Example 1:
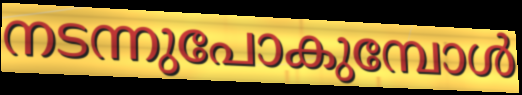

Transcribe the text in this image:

നടന്നുപോകുമ്പോൾ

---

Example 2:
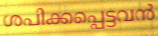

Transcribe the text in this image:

ശപിക്കപ്പെട്ടവൻ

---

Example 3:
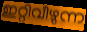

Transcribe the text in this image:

ഇറ്റിവീഴുന്ന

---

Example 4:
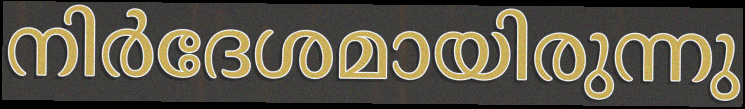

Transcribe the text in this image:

നിർദേശമായിരുന്നു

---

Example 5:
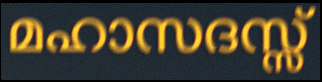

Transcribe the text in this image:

മഹാസദസ്സ്